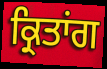
ਕ੍ਰਿਤਾਂਗ